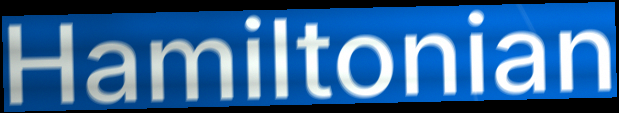
Hamiltonian